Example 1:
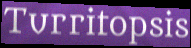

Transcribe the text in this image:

Turritopsis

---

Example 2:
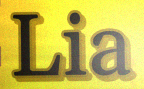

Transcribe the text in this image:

Lia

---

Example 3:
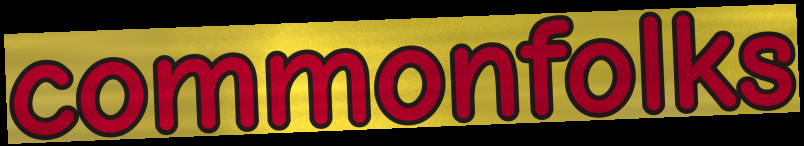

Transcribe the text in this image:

commonfolks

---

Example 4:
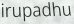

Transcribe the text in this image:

irupadhu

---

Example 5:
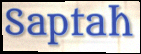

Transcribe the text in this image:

Saptah